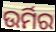
ଉର୍ମିର